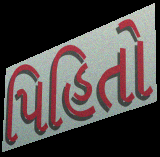
પિહિતો